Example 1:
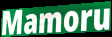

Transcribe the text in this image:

Mamoru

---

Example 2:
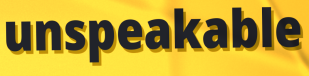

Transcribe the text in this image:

unspeakable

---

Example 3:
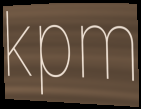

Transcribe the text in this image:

kpm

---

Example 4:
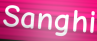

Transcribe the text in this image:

Sanghi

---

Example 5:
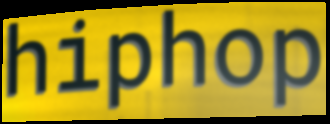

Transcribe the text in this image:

hiphop